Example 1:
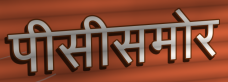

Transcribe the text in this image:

पीसीसमोर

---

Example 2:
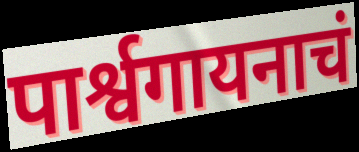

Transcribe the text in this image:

पार्श्वगायनाचं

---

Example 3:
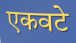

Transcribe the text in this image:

एकवटे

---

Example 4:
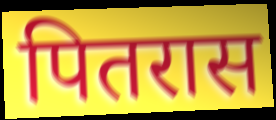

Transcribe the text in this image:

पितरास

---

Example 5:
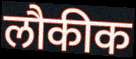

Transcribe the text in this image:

लौकीक